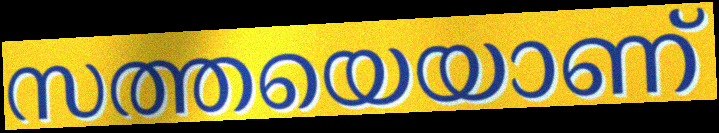
സത്തയെയാണ്